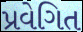
પ્રવેગિત